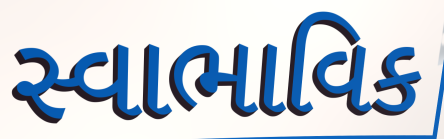
સ્વાભાવિક